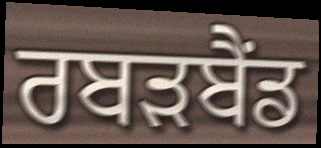
ਰਬੜਬੈਂਡ